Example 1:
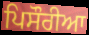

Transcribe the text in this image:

ਪਿਸੌਰੀਆ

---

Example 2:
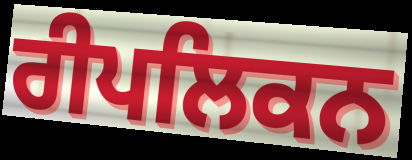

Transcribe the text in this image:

ਰੀਪਲਿਕਨ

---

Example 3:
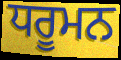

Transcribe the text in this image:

ਧਰੂਮਨ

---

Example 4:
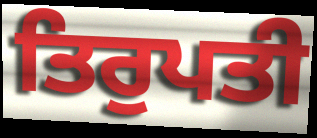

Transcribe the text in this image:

ਤਿਰੁਪਤੀ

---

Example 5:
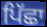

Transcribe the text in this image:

ਪਿੱਛਾ